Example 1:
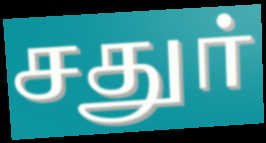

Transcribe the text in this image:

சதுர்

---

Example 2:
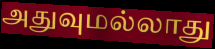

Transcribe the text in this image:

அதுவுமல்லாது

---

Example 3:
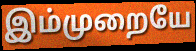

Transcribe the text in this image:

இம்முறையே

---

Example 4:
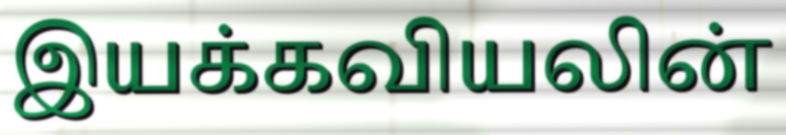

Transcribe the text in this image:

இயக்கவியலின்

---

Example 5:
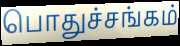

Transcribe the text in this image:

பொதுச்சங்கம்